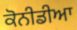
ਕੋਨੀਡੀਆ